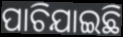
ପାଚିଯାଇଛି